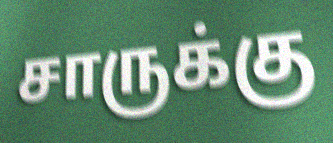
சாருக்கு